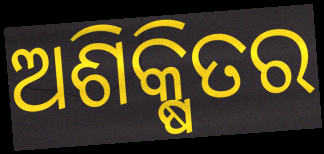
ଅଶିକ୍ଷିତର